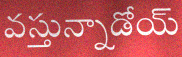
వస్తున్నాడోయ్